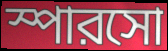
স্পারসো